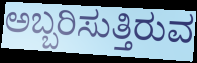
ಅಬ್ಬರಿಸುತ್ತಿರುವ